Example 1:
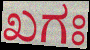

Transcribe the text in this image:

ಖಗಃ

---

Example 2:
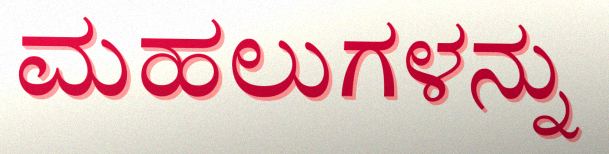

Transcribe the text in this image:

ಮಹಲುಗಳನ್ನು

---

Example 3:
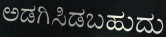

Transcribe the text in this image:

ಅಡಗಿಸಿಡಬಹುದು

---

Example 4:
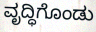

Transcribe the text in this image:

ವೃದ್ಧಿಗೊಂಡು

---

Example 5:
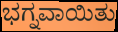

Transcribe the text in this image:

ಭಗ್ನವಾಯಿತು